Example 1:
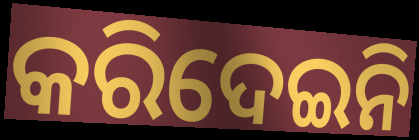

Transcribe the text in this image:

କରିଦେଇନି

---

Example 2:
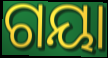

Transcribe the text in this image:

ଗୟା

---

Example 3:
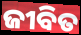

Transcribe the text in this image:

ଜୀବିତ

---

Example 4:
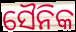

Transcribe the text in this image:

ସୈନିକ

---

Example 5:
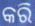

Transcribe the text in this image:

କରି